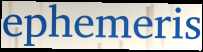
ephemeris